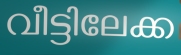
വീട്ടിലേക്ക